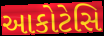
આકોટેસિ